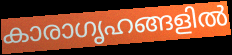
കാരാഗൃഹങ്ങളിൽ